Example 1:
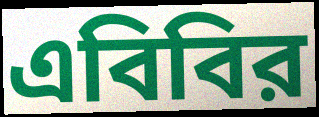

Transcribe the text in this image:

এবিবির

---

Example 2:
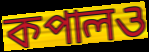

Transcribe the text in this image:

কপালও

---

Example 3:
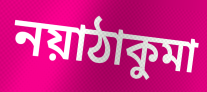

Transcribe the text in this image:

নয়াঠাকুমা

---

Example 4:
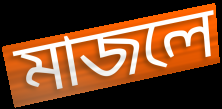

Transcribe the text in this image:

মাজলে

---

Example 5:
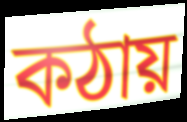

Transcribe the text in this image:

কঠায়